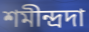
শমীন্দ্রদা